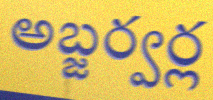
అబ్జర్వర్ల